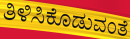
ತಿಳಿಸಿಕೊಡುವಂತೆ